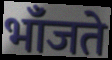
भाँजते